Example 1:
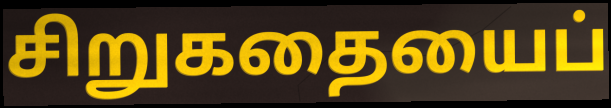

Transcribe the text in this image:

சிறுகதையைப்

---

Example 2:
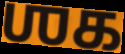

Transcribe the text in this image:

ஶக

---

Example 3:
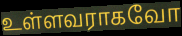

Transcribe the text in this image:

உள்ளவராகவோ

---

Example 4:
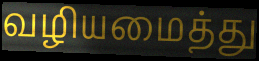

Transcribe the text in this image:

வழியமைத்து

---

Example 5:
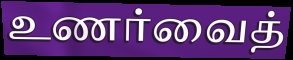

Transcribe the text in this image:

உணர்வைத்